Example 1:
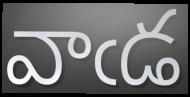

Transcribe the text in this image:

వాఁడ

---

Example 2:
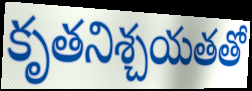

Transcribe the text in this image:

కృతనిశ్చయతతో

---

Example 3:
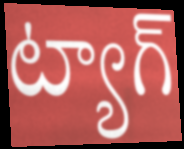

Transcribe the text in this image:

ట్యాగ్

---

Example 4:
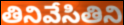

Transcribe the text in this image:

తినివేసితిని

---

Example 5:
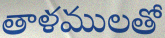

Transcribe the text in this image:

తాళములతో